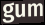
gum